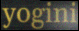
yogini